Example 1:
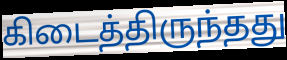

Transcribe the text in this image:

கிடைத்திருந்தது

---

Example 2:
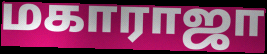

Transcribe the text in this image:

மகாராஜா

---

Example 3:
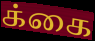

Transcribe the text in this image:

க்கை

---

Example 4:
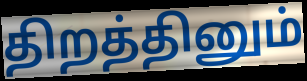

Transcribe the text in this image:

திறத்தினும்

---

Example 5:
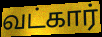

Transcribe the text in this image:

வட்கார்